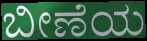
ಬೀಣೆಯ